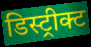
डिस्ट्रीक्ट